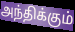
அந்திக்கும்